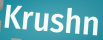
Krushn